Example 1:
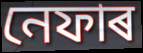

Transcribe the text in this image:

নেফাৰ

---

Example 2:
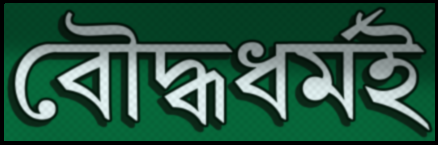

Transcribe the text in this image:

বৌদ্ধধৰ্মই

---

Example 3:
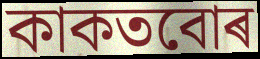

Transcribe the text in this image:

কাকতবোৰ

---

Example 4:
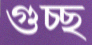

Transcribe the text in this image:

গুচ্ছ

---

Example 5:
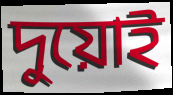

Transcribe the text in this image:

দুয়োই